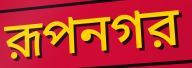
রূপনগর